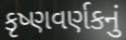
કૃષ્ણવર્ણકનું